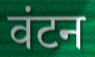
वंटन